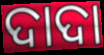
ଦାଦା